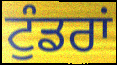
ਟੁੰਡਰਾਂ